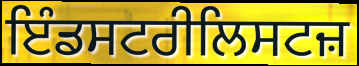
ਇੰਡਸਟਰੀਲਿਸਟਜ਼